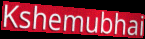
Kshemubhai